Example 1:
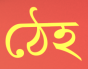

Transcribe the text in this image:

ঠেহ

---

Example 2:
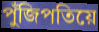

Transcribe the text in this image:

পুঁজিপতিয়ে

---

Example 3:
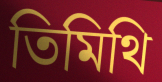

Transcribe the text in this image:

তিমিথি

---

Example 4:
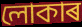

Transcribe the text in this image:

লোকাৰ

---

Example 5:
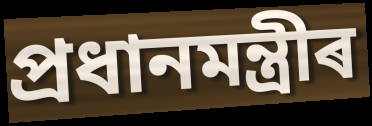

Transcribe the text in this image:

প্ৰধানমন্ত্ৰীৰ